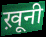
ख़ूनी